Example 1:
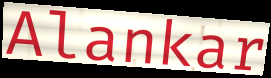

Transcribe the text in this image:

Alankar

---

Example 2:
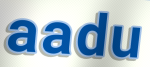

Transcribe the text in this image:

aadu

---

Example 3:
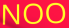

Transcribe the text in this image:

NOO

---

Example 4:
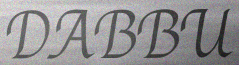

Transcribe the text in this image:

DABBU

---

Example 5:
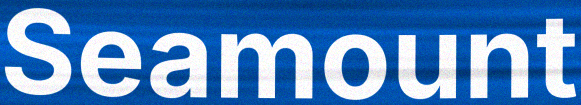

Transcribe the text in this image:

Seamount